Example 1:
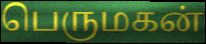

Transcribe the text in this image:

பெருமகன்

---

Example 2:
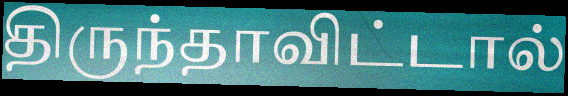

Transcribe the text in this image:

திருந்தாவிட்டால்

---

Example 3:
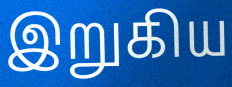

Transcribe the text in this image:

இறுகிய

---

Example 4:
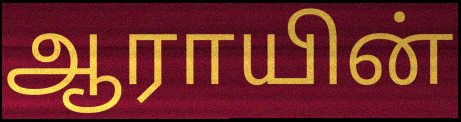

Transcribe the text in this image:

ஆராயின்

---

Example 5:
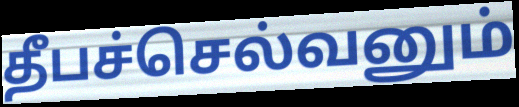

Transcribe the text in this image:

தீபச்செல்வனும்